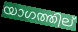
യാഗത്തില്